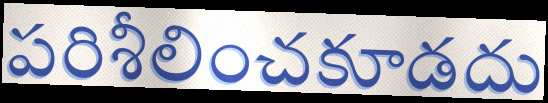
పరిశీలించకూడదు